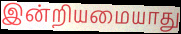
இன்றியமையாது